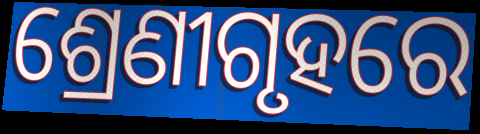
ଶ୍ରେଣୀଗୃହରେ